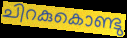
ചിറകുകൊണ്ടു